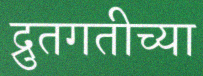
द्रुतगतीच्या